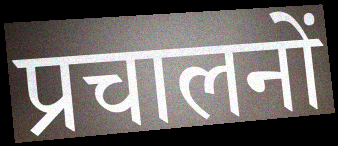
प्रचालनों